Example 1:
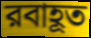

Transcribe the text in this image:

রবাহূত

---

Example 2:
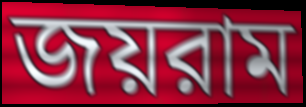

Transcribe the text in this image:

জয়রাম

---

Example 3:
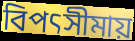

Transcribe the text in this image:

বিপৎসীমায়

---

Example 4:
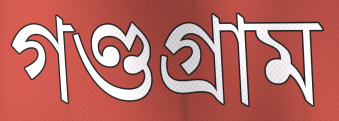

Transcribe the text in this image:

গণ্ডগ্রাম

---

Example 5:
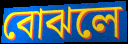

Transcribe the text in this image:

বোঝলে